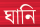
ঘানি